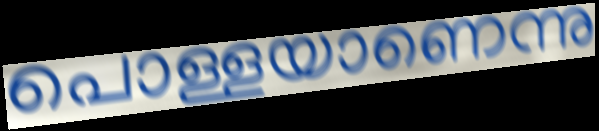
പൊള്ളയാണെന്നു